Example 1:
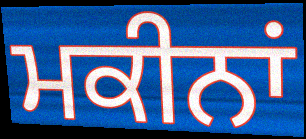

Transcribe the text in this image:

ਮਕੀਨਾਂ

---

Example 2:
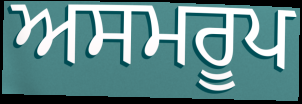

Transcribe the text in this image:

ਅਸਮਰੂਪ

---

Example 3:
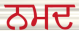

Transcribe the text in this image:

ਨਮਦ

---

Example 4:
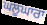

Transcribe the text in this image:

ਘਲੂਘਾਰਾ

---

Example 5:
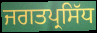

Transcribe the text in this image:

ਜਗਤਪ੍ਰਸਿੱਧ